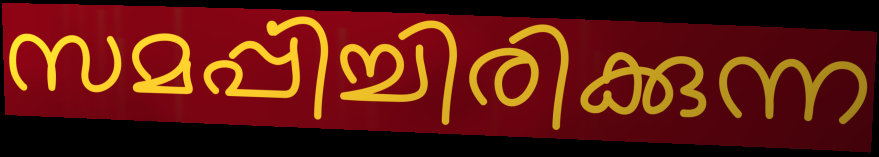
സമൎപ്പിച്ചിരിക്കുന്ന